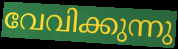
വേവിക്കുന്നു